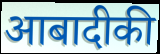
आबादीकी